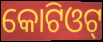
କୋଟିଓଟ୍